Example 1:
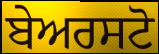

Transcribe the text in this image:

ਬੇਅਰਸਟੋ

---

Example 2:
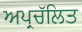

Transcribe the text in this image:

ਅਪ੍ਰਚੱਲਿਤ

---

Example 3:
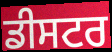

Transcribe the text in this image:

ਡੀਸਟਰ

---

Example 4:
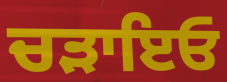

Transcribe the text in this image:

ਚੜਾਇਓ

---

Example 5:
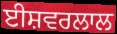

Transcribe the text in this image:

ਈਸ਼ਵਰਲਾਲ